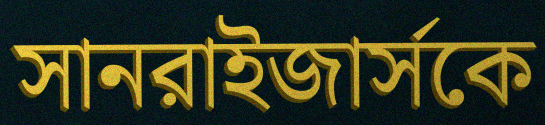
সানরাইজার্সকে